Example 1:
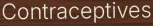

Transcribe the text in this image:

Contraceptives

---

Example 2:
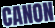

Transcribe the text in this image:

CANON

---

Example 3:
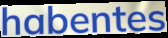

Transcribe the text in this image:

habentes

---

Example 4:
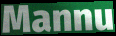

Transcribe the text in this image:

Mannu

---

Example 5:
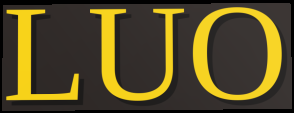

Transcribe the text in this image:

LUO